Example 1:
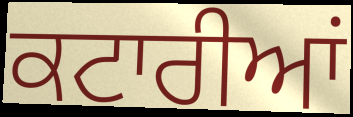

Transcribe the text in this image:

ਕਟਾਰੀਆਂ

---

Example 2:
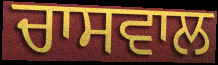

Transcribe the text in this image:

ਚਾਸਵਾਲ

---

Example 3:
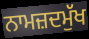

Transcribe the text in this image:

ਨਾਮਜ਼ਦਮੁੱਖ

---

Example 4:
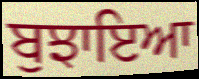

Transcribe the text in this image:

ਬੁਝਾਇਆ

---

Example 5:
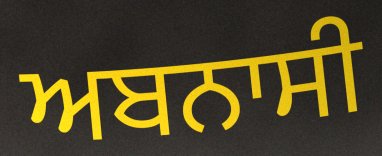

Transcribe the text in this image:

ਅਬਨਾਸੀ